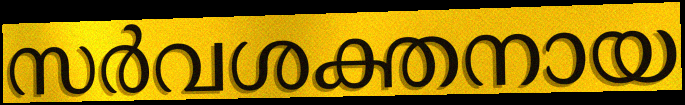
സർവശക്തനായ